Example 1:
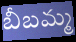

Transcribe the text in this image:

బీబమ్మ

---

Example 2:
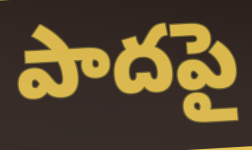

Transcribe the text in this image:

పాదపై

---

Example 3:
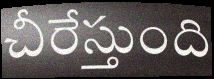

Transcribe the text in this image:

చీరేస్తుంది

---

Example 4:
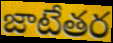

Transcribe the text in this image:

జాటేతర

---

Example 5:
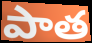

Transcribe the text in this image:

పాత